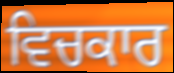
ਵਿਚਕਾਰ